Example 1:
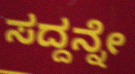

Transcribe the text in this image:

ಸದ್ದನ್ನೇ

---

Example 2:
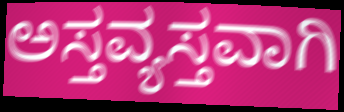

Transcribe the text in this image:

ಅಸ್ತವ್ಯಸ್ತವಾಗಿ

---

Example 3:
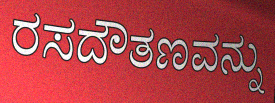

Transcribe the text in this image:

ರಸದೌತಣವನ್ನು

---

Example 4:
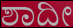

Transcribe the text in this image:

ಶಾದೀ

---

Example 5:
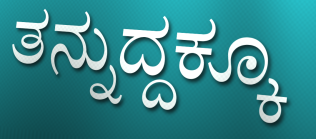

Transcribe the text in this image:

ತನ್ನುದ್ದಕ್ಕೂ